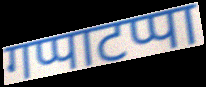
गप्पाटप्पा